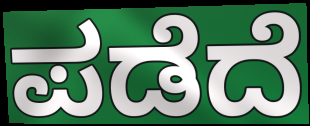
ಪಡೆದೆ